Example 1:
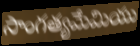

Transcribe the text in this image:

సాంగత్యమేమియు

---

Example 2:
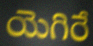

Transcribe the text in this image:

యెగిరే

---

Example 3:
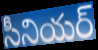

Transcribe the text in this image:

సీనియర్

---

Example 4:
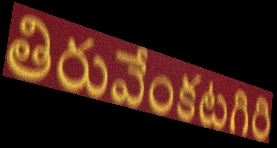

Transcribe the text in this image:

తిరువేంకటగిరి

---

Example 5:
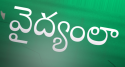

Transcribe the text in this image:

వైద్యంలా